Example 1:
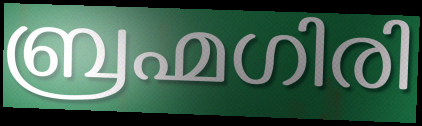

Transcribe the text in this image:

ബ്രഹ്മഗിരി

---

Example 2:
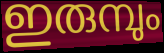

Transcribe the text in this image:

ഇരുമ്പും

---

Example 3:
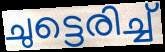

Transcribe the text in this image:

ചുട്ടെരിച്ച്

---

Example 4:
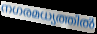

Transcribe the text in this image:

നഗരമധ്യത്തിൽ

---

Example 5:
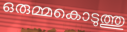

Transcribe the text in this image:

ഒരുമ്മകൊടുത്തു